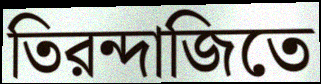
তিরন্দাজিতে